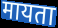
मायता